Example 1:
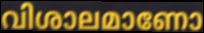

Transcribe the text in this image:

വിശാലമാണോ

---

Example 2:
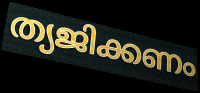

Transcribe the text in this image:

ത്യജിക്കണം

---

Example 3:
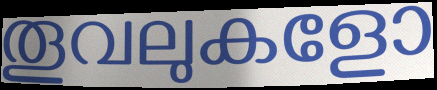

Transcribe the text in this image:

തൂവലുകളോ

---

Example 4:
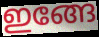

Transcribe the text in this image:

ഇങ്ങേ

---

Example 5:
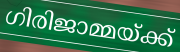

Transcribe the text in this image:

ഗിരിജാമ്മയ്ക്ക്